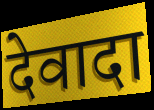
देवादा